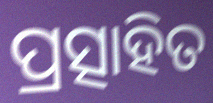
ପ୍ରତ୍ସାହିତ